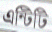
এন্টিটি